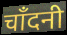
चाँदनी